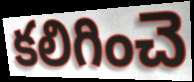
కలిగించె